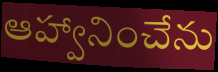
ఆహ్వానించేను